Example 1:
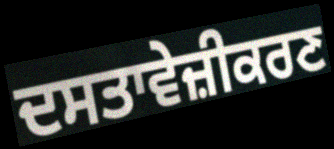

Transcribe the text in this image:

ਦਸਤਾਵੇਜ਼ੀਕਰਣ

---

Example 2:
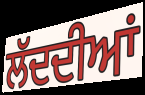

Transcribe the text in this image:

ਲੱਦਦੀਆਂ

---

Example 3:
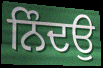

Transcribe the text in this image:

ਨਿੰਦਉ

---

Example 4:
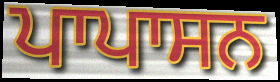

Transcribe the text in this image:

ਪਾਪਾਸਨ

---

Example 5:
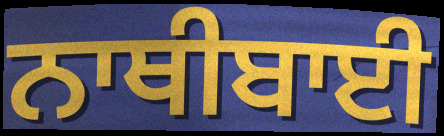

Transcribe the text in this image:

ਨਾਥੀਬਾਈ